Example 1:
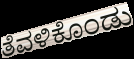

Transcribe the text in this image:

ತೆವಳಿಕೊಂಡು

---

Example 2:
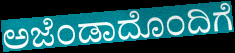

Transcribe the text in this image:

ಅಜೆಂಡಾದೊಂದಿಗೆ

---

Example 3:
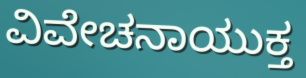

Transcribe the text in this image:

ವಿವೇಚನಾಯುಕ್ತ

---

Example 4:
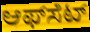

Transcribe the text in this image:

ಆಫ್‍ಸೆಟ್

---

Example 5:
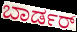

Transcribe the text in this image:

ಬಾರ್ಡರ್